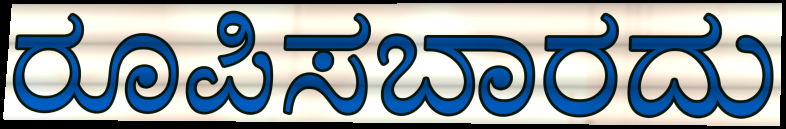
ರೂಪಿಸಬಾರದು